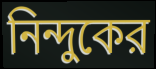
নিন্দুকের